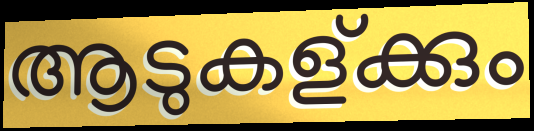
ആടുകള്ക്കും